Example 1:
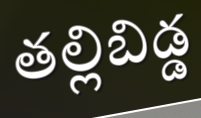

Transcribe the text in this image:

తల్లిబిడ్డ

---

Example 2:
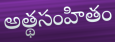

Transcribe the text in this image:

అత్థసంహితం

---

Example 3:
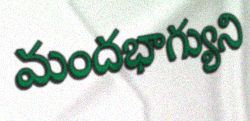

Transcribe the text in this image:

మందభాగ్యుని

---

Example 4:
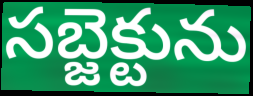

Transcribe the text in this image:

సబ్జెక్టును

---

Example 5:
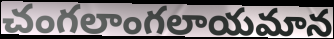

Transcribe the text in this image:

చంగలాంగలాయమాన